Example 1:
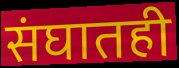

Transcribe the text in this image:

संघातही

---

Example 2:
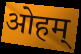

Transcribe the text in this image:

ओहम्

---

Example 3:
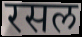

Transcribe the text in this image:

रसल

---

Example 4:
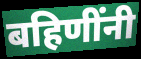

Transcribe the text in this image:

बहिणींनी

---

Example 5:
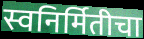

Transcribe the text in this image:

स्वनिर्मितीचा